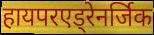
हायपरएड्रेनर्जिक